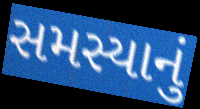
સમસ્યાનું